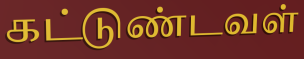
கட்டுண்டவள்